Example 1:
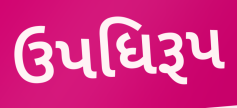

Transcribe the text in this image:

ઉપધિરૂપ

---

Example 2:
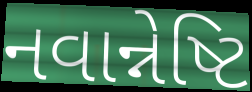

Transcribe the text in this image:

નવાન્નેષ્ટિ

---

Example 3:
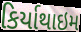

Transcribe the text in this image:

કિર્યાથાઇમ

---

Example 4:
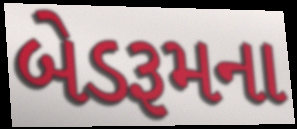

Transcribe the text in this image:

બેડરૂમના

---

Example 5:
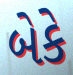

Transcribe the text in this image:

બેકે